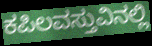
ಕಪಿಲವಸ್ತುವಿನಲ್ಲಿ